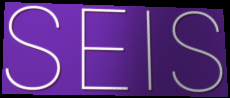
SEIS